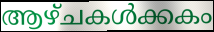
ആഴ്ചകൾക്കകം